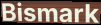
Bismark